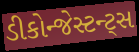
ડીકોન્જેસ્ટન્ટ્સ